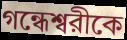
গন্ধেশ্বরীকে